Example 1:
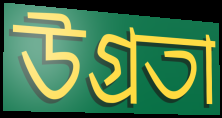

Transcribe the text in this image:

উগ্রতা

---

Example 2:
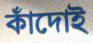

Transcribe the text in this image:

কাঁদোই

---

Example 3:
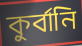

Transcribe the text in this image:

কুর্বানি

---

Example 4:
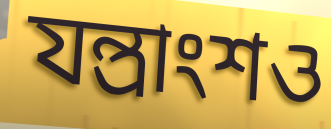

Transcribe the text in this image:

যন্ত্রাংশও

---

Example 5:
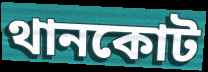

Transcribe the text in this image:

থানকোট